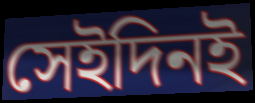
সেইদিনই